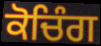
ਕੋਚਿੰਗ